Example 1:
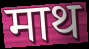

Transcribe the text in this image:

माथ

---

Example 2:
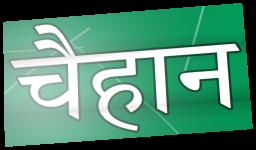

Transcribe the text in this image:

चैहान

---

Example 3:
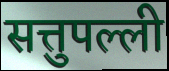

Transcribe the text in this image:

सत्तुपल्ली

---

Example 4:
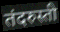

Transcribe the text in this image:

तंदरुस्ती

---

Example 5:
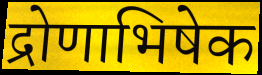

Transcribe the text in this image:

द्रोणाभिषेक